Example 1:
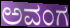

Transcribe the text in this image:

ಅವಂಗ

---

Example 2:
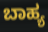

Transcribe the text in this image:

ಬಾಹ್ಯ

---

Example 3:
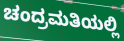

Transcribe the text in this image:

ಚಂದ್ರಮತಿಯಲ್ಲಿ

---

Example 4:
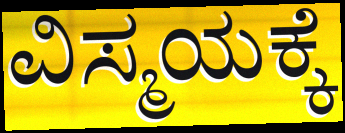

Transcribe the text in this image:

ವಿಸ್ಮಯಕ್ಕೆ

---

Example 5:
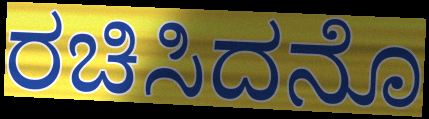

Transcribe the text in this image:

ರಚಿಸಿದನೊ